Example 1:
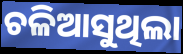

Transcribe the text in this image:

ଚଳିଆସୁଥିଲା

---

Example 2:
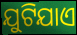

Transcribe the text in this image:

ଯୁଟିଯାଏ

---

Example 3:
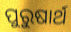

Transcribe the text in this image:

ପୁରୁଷାର୍ଥ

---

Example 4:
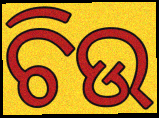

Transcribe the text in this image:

ଚିଉ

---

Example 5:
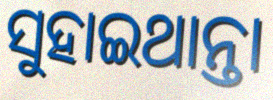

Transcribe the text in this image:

ସୁହାଇଥାନ୍ତା